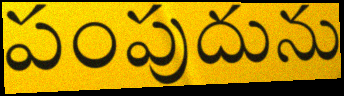
పంపుదును